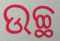
ଉଚ୍ଛ